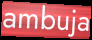
ambuja